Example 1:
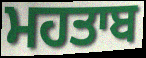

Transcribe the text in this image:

ਮਹਤਾਬ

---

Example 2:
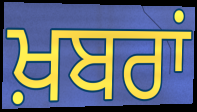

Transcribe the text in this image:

ਖ਼ਬਰਾਂ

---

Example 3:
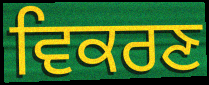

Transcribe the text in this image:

ਵਿਕਰਣ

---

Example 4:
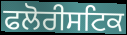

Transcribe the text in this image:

ਫਲੋਰੀਸਟਿਕ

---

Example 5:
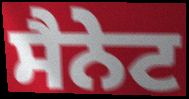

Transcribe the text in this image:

ਸੈਨੇਟ